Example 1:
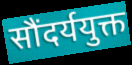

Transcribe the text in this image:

सौंदर्ययुक्त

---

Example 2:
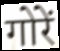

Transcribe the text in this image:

गोरें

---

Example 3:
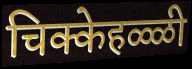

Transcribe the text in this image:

चिक्केहळ्ळी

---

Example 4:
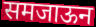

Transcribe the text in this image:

समजाऊन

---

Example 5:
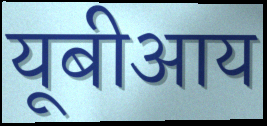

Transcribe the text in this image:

यूबीआय